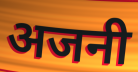
अजनी